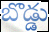
బొడ్డు